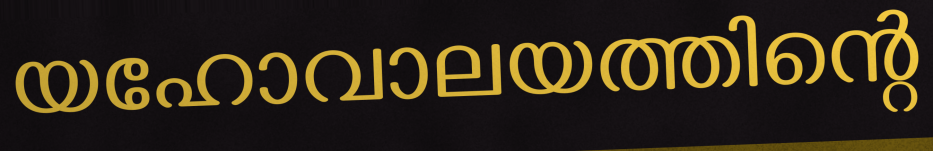
യഹോവാലയത്തിന്റെ